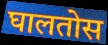
घालतोस